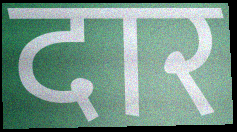
दार